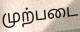
முற்படை